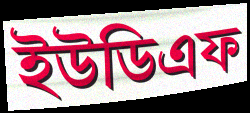
ইউডিএফ